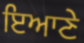
ਇਆਣੇ